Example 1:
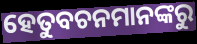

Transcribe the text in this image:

ହେତୁବଚନମାନଙ୍କରୁ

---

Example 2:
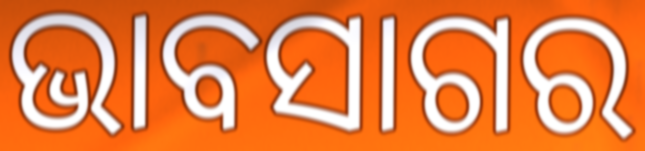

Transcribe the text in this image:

ଭାବସାଗର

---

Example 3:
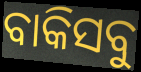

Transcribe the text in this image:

ବାକିସବୁ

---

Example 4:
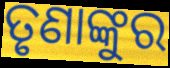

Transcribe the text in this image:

ତୃଣାଙ୍କୁର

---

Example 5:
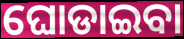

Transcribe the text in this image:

ଘୋଡାଇବା